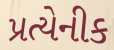
પ્રત્યેનીક